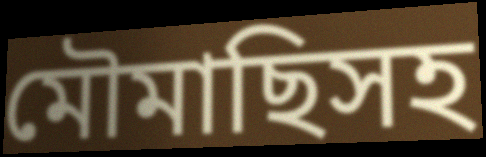
মৌমাছিসহ